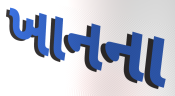
ખાનના